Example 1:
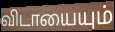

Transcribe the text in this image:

விடாயையும்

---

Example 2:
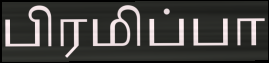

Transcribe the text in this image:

பிரமிப்பா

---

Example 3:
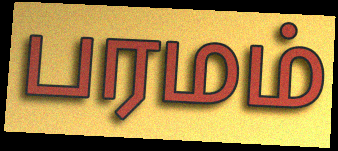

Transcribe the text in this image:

பரமம்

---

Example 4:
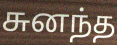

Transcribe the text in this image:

சுனந்த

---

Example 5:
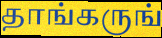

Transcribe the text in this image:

தாங்கருங்